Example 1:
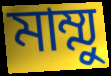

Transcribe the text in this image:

মাম্মু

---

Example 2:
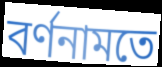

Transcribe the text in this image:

বর্ণনামতে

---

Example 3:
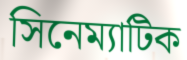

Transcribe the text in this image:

সিনেম্যাটিক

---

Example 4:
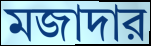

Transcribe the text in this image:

মজাদার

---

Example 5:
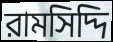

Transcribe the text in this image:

রামসিদ্দি